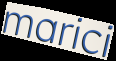
marici